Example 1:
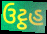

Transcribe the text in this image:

ઉટ્ઠહ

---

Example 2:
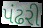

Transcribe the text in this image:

પંઢરી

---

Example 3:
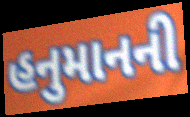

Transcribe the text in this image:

હનુમાનની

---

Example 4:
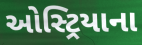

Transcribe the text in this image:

ઓસ્ટ્રિયાના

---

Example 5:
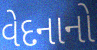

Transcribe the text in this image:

વેદનાનો